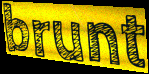
brunt